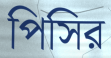
পিসির